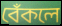
বেঁকলে